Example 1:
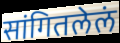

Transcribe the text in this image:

सांगितलेलं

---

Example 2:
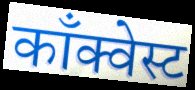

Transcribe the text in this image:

काँक्वेस्ट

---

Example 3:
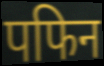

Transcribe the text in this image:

पफिन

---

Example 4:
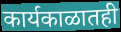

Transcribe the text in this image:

कार्यकाळातही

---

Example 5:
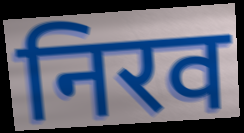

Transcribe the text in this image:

निरव